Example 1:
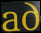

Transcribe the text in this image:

ad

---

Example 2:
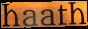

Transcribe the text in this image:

haath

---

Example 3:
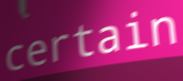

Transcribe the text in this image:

certain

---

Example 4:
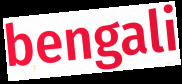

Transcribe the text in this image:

bengali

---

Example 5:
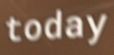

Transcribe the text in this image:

today